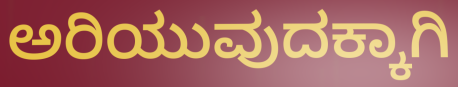
ಅರಿಯುವುದಕ್ಕಾಗಿ